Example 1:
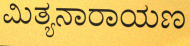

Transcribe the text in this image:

ಮಿತ್ಯನಾರಾಯಣ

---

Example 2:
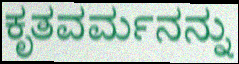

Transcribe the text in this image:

ಕೃತವರ್ಮನನ್ನು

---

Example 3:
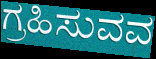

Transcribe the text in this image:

ಗ್ರಹಿಸುವವ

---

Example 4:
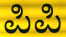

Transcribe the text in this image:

ಪಿಪಿ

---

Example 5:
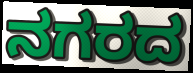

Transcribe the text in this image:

ನಗರದ